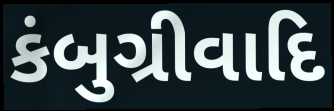
કંબુગ્રીવાદિ